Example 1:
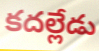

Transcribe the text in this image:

కదల్లేడు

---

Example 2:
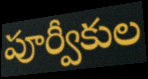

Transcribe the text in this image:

పూర్వీకుల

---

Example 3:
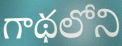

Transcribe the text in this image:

గాథలోని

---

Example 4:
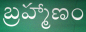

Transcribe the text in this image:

బ్రహ్మాణం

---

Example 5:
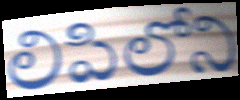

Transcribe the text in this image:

లిపిలోని